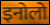
इनोलो